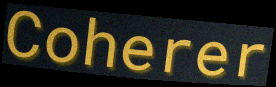
Coherer